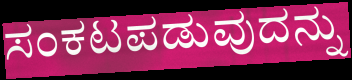
ಸಂಕಟಪಡುವುದನ್ನು